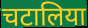
चटालिया